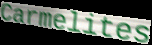
Carmelites